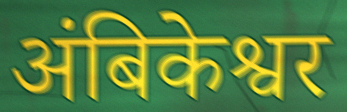
अंबिकेश्वर